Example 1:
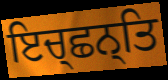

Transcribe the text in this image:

ਇਚ੍ਛਨ੍ਤਿ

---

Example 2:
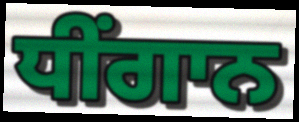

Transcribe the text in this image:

ਧੀਂਗਾਨ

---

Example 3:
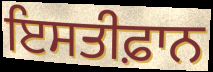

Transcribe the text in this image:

ਇਸਤੀਫ਼ਾਨ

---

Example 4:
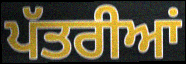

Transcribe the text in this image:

ਪੱਤਰੀਆਂ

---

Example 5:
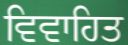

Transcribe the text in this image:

ਵਿਵਾਹਿਤ